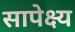
सापेक्ष्य